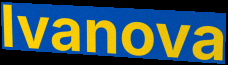
Ivanova